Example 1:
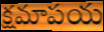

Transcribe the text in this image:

క్షమాపయ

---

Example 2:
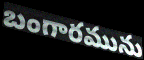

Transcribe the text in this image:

బంగారమును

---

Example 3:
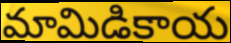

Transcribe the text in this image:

మామిడికాయ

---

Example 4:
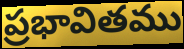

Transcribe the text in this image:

ప్రభావితము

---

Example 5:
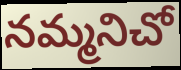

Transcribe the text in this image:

నమ్మనిచో